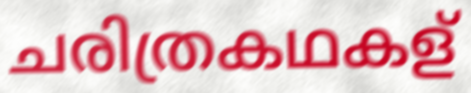
ചരിത്രകഥകള്